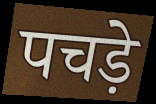
पचड़े